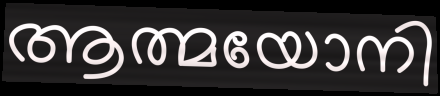
ആത്മയോനി